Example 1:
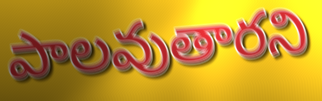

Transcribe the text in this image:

పాలవుతారని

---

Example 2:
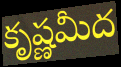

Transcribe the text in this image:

కృష్ణమీద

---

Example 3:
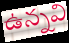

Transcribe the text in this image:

ఉన్నవి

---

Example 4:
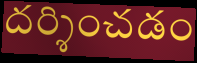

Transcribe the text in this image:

దర్శించడం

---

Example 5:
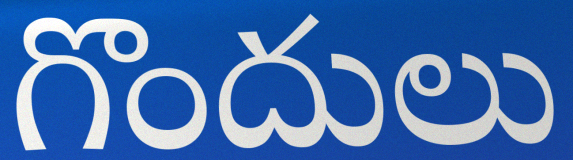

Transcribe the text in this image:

గొందులు